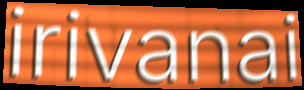
irivanai